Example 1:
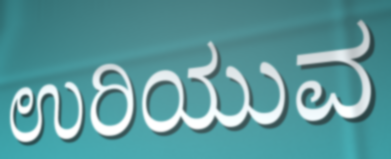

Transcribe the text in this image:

ಉರಿಯುವ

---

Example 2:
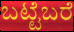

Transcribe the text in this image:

ಬಟ್ಟೆಬರೆ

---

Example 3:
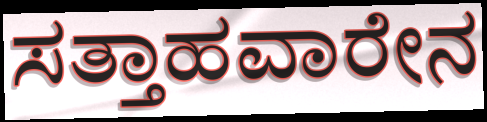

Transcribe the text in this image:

ಸತ್ತಾಹವಾರೇನ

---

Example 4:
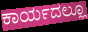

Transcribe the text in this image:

ಕಾರ್ಯದಲ್ಲೂ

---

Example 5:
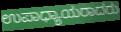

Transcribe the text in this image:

ಉಪಾಧ್ಯಾಯರಾದರು